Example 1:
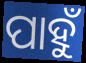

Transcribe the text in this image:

ପାହୁଁ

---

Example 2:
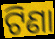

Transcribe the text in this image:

ଟିଣା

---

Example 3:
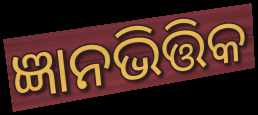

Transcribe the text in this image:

ଜ୍ଞାନଭିତ୍ତିକ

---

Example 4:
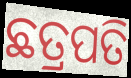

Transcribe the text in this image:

ଛତ୍ରପତି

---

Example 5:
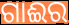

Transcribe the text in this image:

ଗାଈର